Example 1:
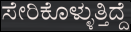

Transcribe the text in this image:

ಸೇರಿಕೊಳ್ಳುತ್ತಿದ್ದೆ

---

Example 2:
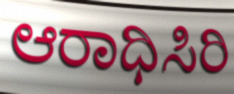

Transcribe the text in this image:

ಆರಾಧಿಸಿರಿ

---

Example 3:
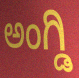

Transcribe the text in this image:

ಅಂಗ್ಡಿ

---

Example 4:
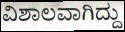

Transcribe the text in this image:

ವಿಶಾಲವಾಗಿದ್ದು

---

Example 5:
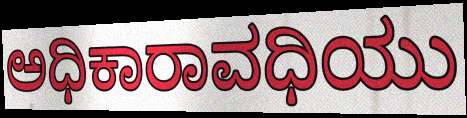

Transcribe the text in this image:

ಅಧಿಕಾರಾವಧಿಯು